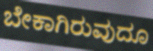
ಬೇಕಾಗಿರುವುದೂ